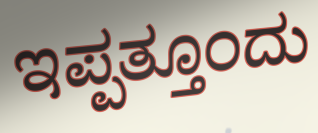
ಇಪ್ಪತ್ತೂಂದು